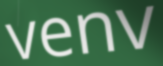
venv